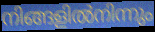
നിങ്ങളിൽനിന്നും